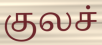
குலச்